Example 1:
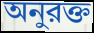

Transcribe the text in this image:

অনুরক্ত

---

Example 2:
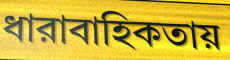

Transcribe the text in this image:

ধারাবাহিকতায়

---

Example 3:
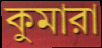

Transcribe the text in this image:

কুমারা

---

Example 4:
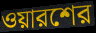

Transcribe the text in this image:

ওয়ারশের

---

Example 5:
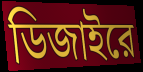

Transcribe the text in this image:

ডিজাইরে